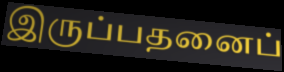
இருப்பதனைப்